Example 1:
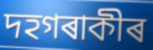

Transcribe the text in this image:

দহগৰাকীৰ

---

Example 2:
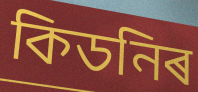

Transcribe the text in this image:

কিডনিৰ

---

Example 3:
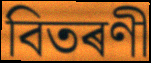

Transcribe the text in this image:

বিতৰণী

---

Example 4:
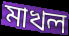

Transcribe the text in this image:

মাখল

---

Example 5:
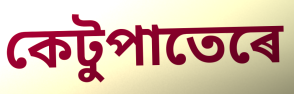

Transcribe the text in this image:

কেটুপাতেৰে